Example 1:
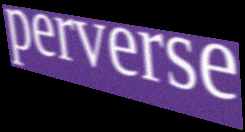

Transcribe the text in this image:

perverse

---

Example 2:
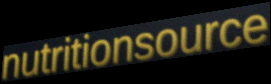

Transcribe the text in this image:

nutritionsource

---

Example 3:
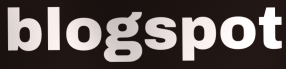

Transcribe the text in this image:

blogspot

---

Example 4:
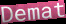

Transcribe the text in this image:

Demat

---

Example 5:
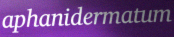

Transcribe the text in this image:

aphanidermatum